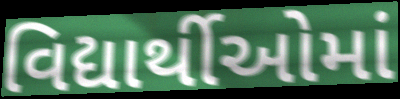
વિદ્યાર્થીઓમાં